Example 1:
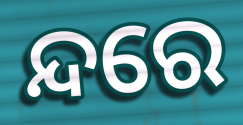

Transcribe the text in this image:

ନ୍ଦରେ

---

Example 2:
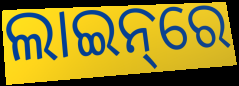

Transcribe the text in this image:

ଲାଇନ୍‌ରେ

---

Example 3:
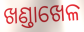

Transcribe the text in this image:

ଖଣ୍ଡାଖେଳ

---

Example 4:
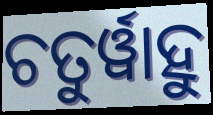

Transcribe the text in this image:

ଚତୁର୍ୱାହୁ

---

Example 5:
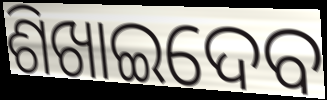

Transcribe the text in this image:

ଶିଖାଇଦେବ